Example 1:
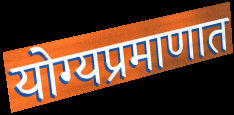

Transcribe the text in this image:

योग्यप्रमाणात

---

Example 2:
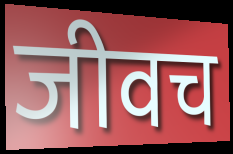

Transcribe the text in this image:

जीवच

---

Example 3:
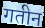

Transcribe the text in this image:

गतीन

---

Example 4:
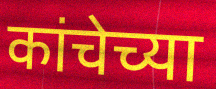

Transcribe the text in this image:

कांचेच्या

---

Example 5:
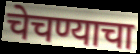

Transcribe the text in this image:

चेचण्याचा